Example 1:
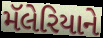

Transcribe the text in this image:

મૅલેરિયાને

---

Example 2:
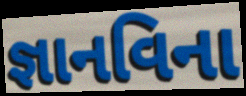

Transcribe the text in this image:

જ્ઞાનવિના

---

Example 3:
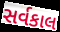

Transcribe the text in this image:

સર્વકાલ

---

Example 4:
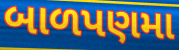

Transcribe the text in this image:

બાળપણમા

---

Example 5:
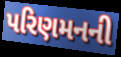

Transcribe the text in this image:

પરિણમનની